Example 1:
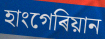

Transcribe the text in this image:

হাংগেৰিয়ান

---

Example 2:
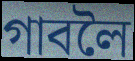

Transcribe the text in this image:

গাবলৈ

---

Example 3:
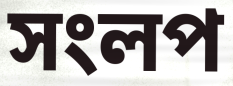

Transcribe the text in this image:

সংলপ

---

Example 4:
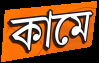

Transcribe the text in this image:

কামে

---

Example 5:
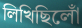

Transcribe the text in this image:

লিখিছিলোঁ